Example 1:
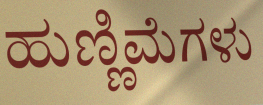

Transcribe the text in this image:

ಹುಣ್ಣಿಮೆಗಳು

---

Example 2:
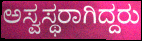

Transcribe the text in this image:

ಅಸ್ವಸ್ಥರಾಗಿದ್ದರು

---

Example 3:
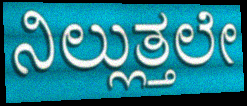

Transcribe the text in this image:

ನಿಲ್ಲುತ್ತಲೇ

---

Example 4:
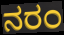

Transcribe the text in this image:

ನರಂ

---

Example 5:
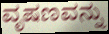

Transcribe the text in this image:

ವೃಷಣವನ್ನು